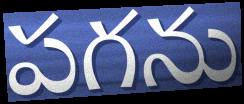
పగను